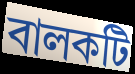
বালকটি